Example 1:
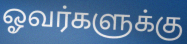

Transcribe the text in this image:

ஓவர்களுக்கு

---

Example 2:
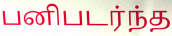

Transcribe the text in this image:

பனிபடர்ந்த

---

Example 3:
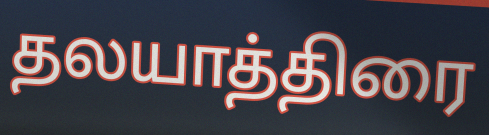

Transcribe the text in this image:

தலயாத்திரை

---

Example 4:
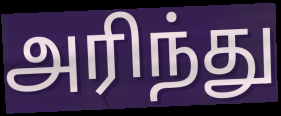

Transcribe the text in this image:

அரிந்து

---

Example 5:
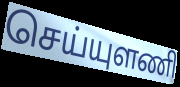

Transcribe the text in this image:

செய்யுளணி